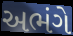
અભંગે